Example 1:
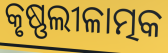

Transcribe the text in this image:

କୃଷ୍ଣଲୀଳାତ୍ମକ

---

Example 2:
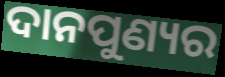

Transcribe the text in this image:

ଦାନପୁଣ୍ୟର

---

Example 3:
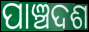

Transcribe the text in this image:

ପାଞ୍ଚଦଶ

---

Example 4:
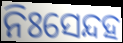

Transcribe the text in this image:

ନିଃସେନ୍ଦହ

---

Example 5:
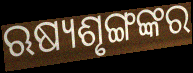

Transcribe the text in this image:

ଋଷ୍ୟଶୃଙ୍ଗଙ୍କର